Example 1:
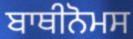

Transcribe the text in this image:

ਬਾਥੀਨੋਮਸ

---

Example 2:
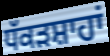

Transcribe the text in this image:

ਧੱਕੜਸ਼ਾਹਾਂ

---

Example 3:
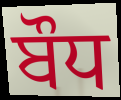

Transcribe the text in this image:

ਬੌਧ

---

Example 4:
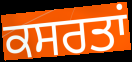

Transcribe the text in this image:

ਕਸਰਤਾਂ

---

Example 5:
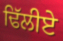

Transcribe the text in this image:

ਢਿੱਲੀਏ